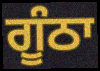
ਗੂੰਠਾ